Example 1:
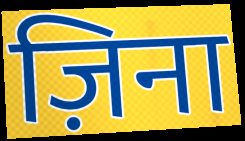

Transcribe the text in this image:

ज़िना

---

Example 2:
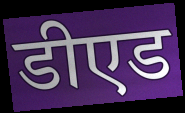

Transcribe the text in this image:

डीएड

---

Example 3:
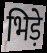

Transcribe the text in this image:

भिड़े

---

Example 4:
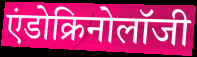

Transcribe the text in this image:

एंडोक्रिनोलॉजी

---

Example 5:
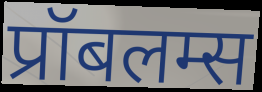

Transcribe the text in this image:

प्रॉबलम्स